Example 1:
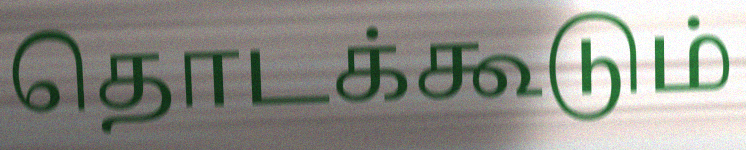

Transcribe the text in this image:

தொடக்கூடும்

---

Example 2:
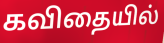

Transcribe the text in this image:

கவிதையில்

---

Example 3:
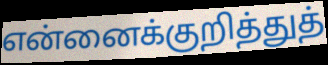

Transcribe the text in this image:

என்னைக்குறித்துத்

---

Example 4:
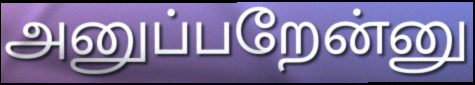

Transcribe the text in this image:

அனுப்பறேன்னு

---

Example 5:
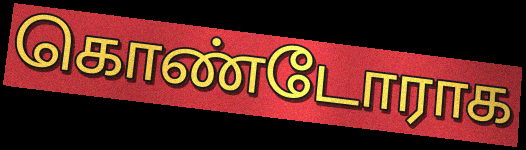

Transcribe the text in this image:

கொண்டோராக